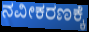
ನವೀಕರಣಕ್ಕೆ